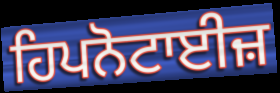
ਹਿਪਨੋਟਾਈਜ਼